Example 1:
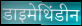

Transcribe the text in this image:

डाइमेथिंडीन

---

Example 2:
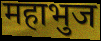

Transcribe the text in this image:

महाभुज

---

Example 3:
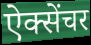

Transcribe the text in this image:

ऐक्सेंचर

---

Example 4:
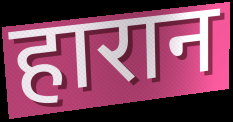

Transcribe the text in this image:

हारान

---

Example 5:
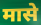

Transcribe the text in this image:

मासे